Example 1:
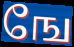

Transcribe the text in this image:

ஙே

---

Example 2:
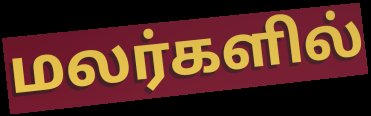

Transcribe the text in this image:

மலர்களில்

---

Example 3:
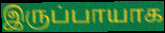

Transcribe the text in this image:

இருப்பாயாக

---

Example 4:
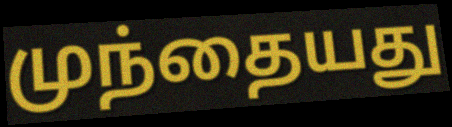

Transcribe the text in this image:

முந்தையது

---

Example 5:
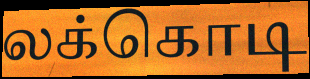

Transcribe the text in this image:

லக்கொடி